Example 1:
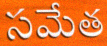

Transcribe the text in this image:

సమేత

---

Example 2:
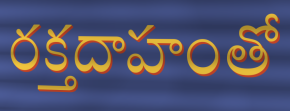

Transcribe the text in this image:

రక్తదాహంతో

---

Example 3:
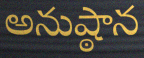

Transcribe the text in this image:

అనుష్ఠాన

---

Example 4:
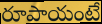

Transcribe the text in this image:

రూపాయంటే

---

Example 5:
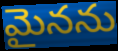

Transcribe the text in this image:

మైనను